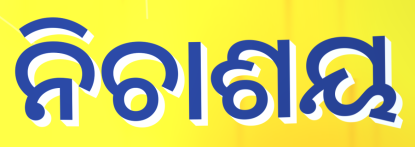
ନିଚାଶୟ